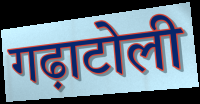
गढ़ाटोली